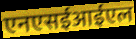
एनएसईआईएल